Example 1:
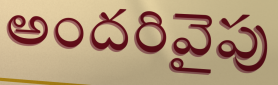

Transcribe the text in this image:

అందరివైపు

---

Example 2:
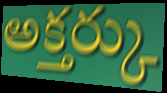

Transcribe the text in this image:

అక్తర్కు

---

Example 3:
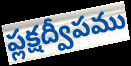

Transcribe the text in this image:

ప్లక్షద్వీపము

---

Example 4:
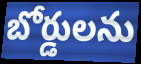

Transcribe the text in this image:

బోర్డులను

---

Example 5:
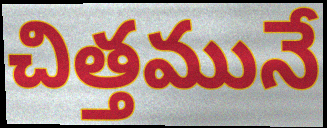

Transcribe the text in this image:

చిత్తమునే